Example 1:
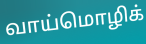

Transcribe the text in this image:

வாய்மொழிக்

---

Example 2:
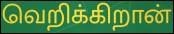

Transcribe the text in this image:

வெறிக்கிறான்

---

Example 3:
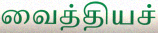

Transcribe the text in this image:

வைத்தியச்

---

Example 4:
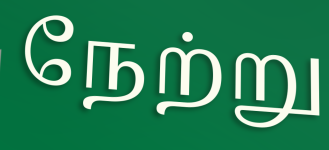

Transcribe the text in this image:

நேற்று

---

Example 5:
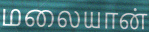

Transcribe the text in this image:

மலையான்